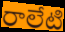
రాలేటి